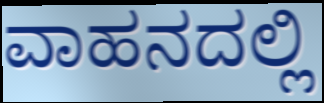
ವಾಹನದಲ್ಲಿ